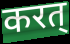
करत्